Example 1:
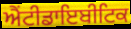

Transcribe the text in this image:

ਐਂਟੀਡਾਇਬੀਟਿਕ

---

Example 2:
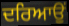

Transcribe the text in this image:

ਦਰਿਆਉਂ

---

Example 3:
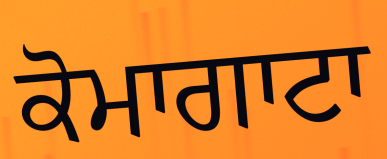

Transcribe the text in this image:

ਕੋਮਾਗਾਟਾ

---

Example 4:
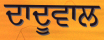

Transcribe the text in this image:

ਦਾਦੂਵਾਲ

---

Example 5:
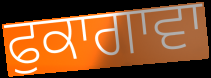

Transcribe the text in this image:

ਫੁਕਾਗਾਵਾ